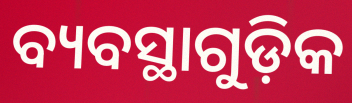
ବ୍ୟବସ୍ଥାଗୁଡ଼ିକ